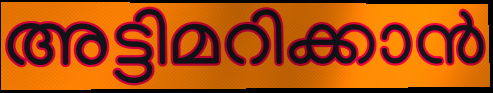
അട്ടിമറിക്കാൻ